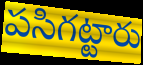
పసిగట్టారు